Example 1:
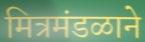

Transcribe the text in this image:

मित्रमंडळाने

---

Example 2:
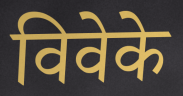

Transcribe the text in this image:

विवेके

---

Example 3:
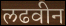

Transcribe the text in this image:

लढवीन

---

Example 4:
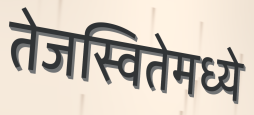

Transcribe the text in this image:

तेजस्वितेमध्ये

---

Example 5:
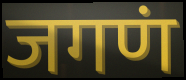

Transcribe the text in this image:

जगणं